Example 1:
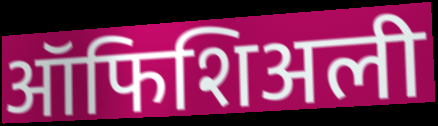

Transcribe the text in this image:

ऑफिशिअली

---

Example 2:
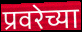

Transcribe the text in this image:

प्रवरेच्या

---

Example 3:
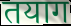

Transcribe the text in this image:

तयाग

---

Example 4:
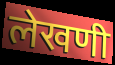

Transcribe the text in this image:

लेखणी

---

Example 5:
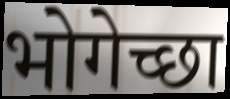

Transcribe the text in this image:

भोगेच्छा